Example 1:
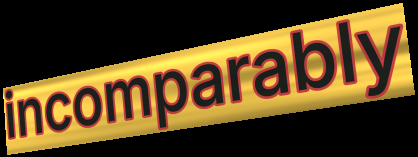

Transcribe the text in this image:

incomparably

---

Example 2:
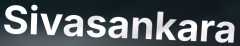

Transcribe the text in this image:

Sivasankara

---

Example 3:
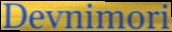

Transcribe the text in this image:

Devnimori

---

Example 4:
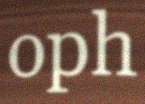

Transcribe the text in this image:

oph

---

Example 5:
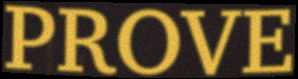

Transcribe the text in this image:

PROVE